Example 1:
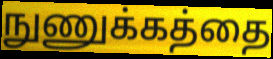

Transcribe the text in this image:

நுணுக்கத்தை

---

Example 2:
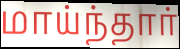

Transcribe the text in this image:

மாய்ந்தார்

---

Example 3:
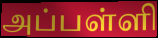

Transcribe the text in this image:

அப்பள்ளி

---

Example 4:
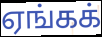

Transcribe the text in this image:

ஏங்கக்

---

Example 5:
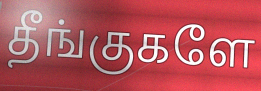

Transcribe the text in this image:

தீங்குகளே